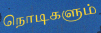
நொடிகளும்